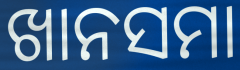
ଖାନସମା